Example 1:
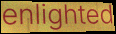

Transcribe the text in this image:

enlighted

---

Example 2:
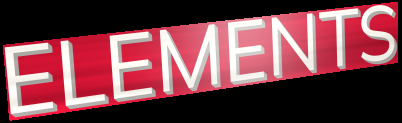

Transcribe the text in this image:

ELEMENTS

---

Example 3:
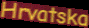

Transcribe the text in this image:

Hrvatska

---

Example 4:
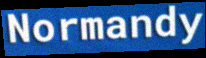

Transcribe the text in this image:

Normandy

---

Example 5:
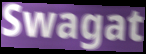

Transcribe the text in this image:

Swagat